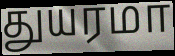
துயரமா